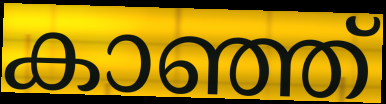
കാഞ്ഞ്